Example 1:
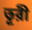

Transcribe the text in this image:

তূরী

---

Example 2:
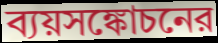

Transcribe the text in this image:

ব্যয়সঙ্কোচনের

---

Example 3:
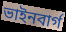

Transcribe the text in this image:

ভাইনবার্গ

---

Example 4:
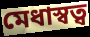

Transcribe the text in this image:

মেধাস্বত্ব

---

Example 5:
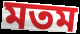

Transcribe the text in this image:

মতম